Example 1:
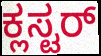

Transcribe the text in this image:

ಕ್ಲಸ್ಟರ್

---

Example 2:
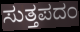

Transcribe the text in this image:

ಸುತ್ತಪದಂ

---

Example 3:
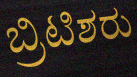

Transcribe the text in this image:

ಬ್ರಿಟಿಶರು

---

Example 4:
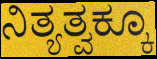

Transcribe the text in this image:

ನಿತ್ಯತ್ವಕ್ಕೂ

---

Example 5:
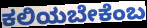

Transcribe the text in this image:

ಕಲಿಯಬೇಕೆಂಬ